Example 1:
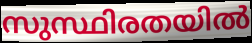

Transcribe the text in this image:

സുസ്ഥിരതയിൽ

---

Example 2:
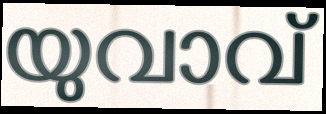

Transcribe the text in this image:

യുവാവ്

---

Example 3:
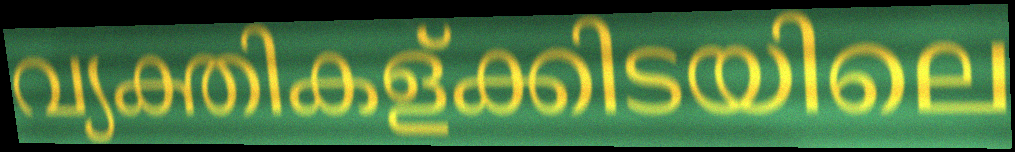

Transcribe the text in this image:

വ്യക്തികള്ക്കിടയിലെ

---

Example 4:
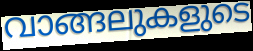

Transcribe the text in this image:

വാങ്ങലുകളുടെ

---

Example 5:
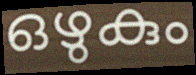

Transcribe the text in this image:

ഒഴുകും